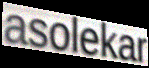
asolekar